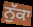
ਨੁੱਕਾ